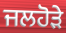
ਜਲਹੋੜੇ